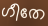
ഗീതേ